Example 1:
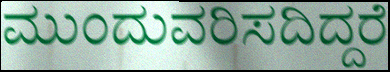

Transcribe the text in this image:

ಮುಂದುವರಿಸದಿದ್ದರೆ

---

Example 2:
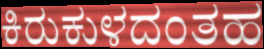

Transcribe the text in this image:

ಕಿರುಕುಳದಂತಹ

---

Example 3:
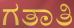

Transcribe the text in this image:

ಗತಾತಿ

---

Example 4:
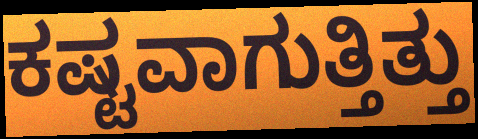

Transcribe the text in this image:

ಕಷ್ಟವಾಗುತ್ತಿತ್ತು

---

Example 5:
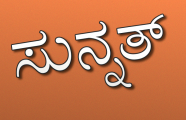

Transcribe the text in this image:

ಸುನ್ನತ್